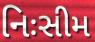
નિઃસીમ